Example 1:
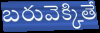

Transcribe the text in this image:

బరువెక్కితే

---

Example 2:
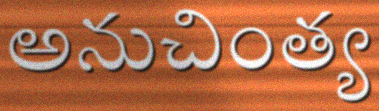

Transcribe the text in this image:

అనుచింత్య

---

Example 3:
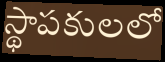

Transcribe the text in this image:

స్థాపకులలో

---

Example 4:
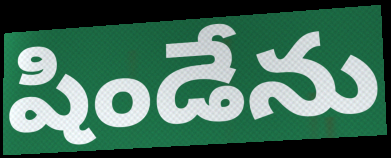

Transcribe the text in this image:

షిండేను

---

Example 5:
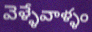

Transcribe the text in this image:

వెళ్ళేవాళ్ళం